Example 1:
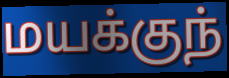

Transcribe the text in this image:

மயக்குந்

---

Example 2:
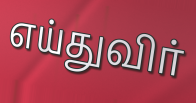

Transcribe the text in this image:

எய்துவிர்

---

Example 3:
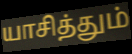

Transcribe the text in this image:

யாசித்தும்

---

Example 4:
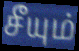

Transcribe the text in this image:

சீயும்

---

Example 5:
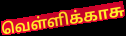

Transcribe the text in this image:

வெள்ளிக்காசு